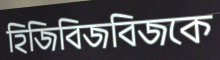
হিজিবিজবিজকে